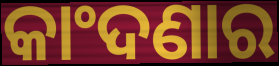
କାଂଦଣାର